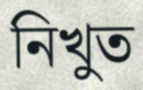
নিখুত